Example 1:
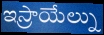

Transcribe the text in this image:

ఇస్రాయేల్ను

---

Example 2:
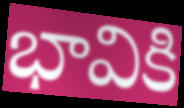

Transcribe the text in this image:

భావికి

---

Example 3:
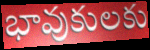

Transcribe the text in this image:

భావుకులకు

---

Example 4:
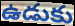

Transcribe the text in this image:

ఉడుకు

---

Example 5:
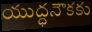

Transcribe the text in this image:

యుద్ధనౌకకు